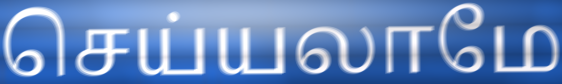
செய்யலாமே